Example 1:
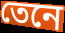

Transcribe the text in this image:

তেনে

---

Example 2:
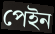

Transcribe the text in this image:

পেইন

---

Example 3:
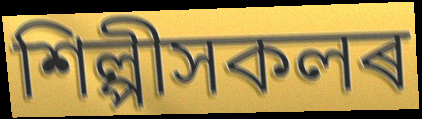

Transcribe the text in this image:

শিল্পীসকলৰ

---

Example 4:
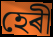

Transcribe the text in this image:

হেৰী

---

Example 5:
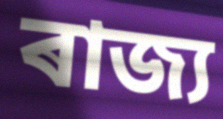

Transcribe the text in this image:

ৰাজ্য